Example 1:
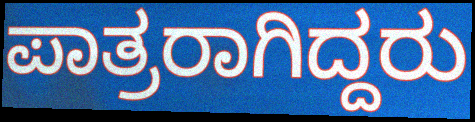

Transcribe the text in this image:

ಪಾತ್ರರಾಗಿದ್ದರು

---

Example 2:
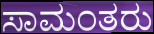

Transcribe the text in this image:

ಸಾಮಂತರು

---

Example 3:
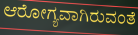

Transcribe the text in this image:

ಆರೋಗ್ಯವಾಗಿರುವಂತೆ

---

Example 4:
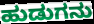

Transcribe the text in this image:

ಹುಡುಗನು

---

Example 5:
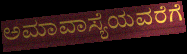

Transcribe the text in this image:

ಅಮಾವಾಸ್ಯೆಯವರೆಗೆ